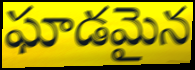
ఘాడమైన